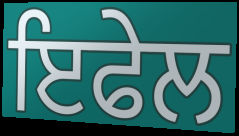
ਇਫੇਲ